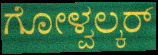
ಗೋಳ್ವಲ್ಕರ್